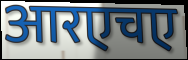
आरएचए